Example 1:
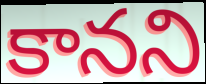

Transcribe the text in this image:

కానని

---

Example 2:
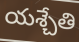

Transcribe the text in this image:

యశ్చేతి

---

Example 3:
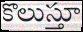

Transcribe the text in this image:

కొలుస్తూ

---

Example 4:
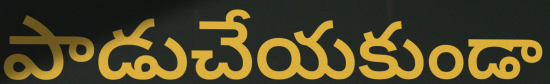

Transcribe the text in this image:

పాడుచేయకుండా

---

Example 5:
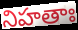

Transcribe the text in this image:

నిహతాః